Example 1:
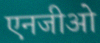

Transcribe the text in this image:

एनजीओ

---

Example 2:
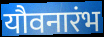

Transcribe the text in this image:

यौवनारंभ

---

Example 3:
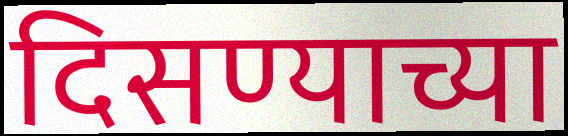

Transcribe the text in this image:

दिसण्याच्या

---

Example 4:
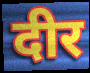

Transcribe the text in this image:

दीर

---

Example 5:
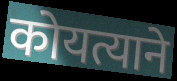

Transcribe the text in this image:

कोयत्याने